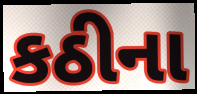
કઠીના